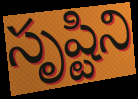
సృష్టిని